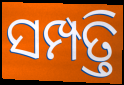
ସମ୍ପତ୍ତି